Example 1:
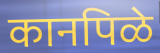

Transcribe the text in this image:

कानपिळे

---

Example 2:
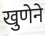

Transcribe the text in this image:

खुणेने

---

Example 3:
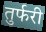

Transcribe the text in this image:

तुर्फरी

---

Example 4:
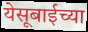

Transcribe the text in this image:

येसूबाईच्या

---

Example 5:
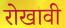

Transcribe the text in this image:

रोखावी